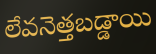
లేవనెత్తబడ్డాయి